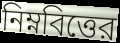
নিম্নবিত্তের